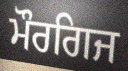
ਮੌਰਗਿਜ